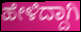
ಹೇಳಿದ್ದಾಗಿ